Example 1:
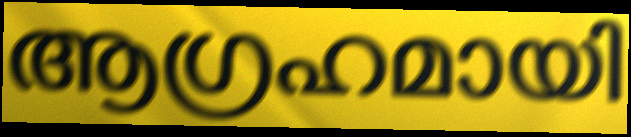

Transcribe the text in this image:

ആഗ്രഹമായി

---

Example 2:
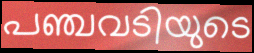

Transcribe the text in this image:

പഞ്ചവടിയുടെ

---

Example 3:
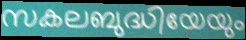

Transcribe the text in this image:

സകലബുദ്ധിയേയും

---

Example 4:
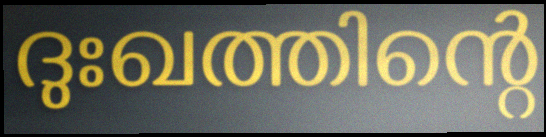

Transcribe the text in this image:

ദുഃഖത്തിന്റെ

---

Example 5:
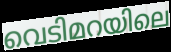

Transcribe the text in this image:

വെടിമറയിലെ